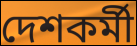
দেশকর্মী